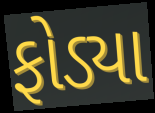
ફોડ્યા